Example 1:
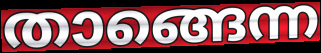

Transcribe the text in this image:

താങ്ങെന്ന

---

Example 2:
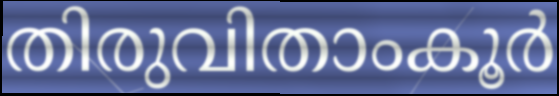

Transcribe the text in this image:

തിരുവിതാംകൂർ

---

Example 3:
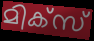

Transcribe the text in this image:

മിക്സ്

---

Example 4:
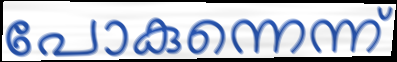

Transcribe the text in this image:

പോകുന്നെന്ന്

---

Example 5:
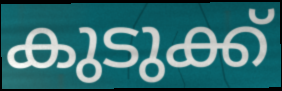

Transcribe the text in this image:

കുടുക്ക്